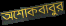
অশোকবাবুর